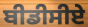
ਬੀਡੀਸੀਏ